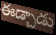
ఈడ్చాడు